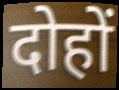
दोहों